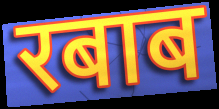
रबाब